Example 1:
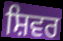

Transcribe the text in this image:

ਸ਼ਿਵਰ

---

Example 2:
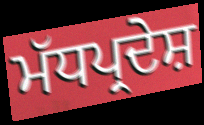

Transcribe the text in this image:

ਮੱਧਪ੍ਰਦੇਸ਼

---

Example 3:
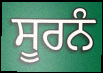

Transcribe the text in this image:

ਸੂਰਨੰ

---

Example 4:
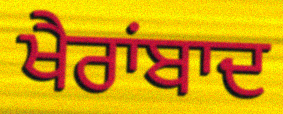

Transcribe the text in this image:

ਖੈਰਾਂਬਾਦ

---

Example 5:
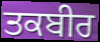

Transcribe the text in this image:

ਤਕਬੀਰ